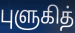
புளுகித்